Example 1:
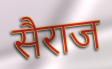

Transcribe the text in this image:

सैराज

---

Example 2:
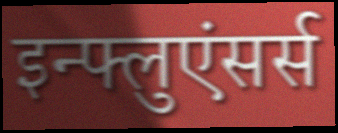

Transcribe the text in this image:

इन्फ्लुएंसर्स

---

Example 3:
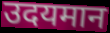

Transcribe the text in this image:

उदयमान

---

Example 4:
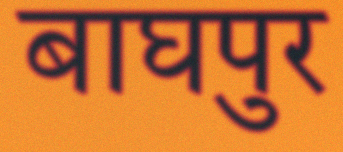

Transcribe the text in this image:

बाघपुर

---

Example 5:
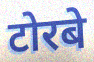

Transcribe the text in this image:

टोरबे